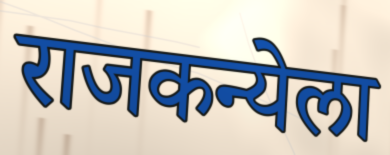
राजकन्येला